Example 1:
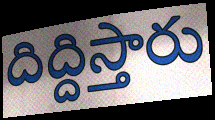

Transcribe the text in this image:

దిద్దిస్తారు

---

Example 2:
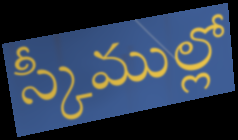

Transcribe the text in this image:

స్కీముల్లో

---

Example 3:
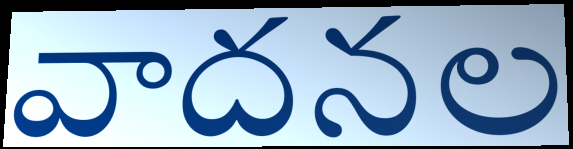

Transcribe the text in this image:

వాదనల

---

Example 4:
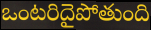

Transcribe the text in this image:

ఒంటరిదైపోతుంది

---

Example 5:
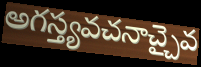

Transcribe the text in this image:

అగస్త్యవచనాచ్చైవ